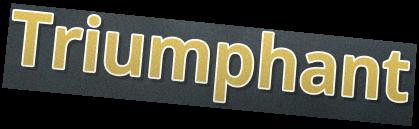
Triumphant